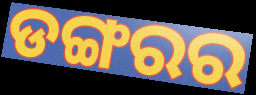
ଡଙ୍ଗରର